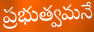
ప్రభుత్వమనే